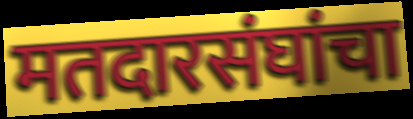
मतदारसंघांचा